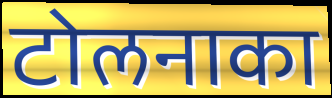
टोलनाका